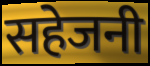
सहेजनी